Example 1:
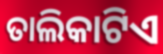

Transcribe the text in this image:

ତାଲିକାଟିଏ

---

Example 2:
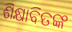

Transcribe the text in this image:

ଶିକ୍ଷାବିତଙ୍କ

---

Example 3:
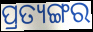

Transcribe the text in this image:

ପ୍ରତ୍ୟଙ୍ଗର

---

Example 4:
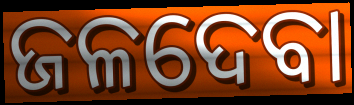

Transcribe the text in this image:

ଜଳଦେବା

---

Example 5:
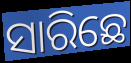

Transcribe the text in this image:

ସାରିଛେ